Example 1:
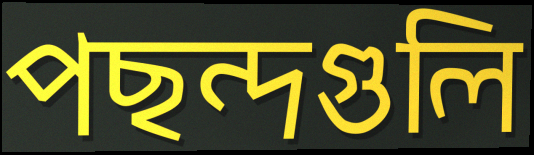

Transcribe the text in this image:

পছন্দগুলি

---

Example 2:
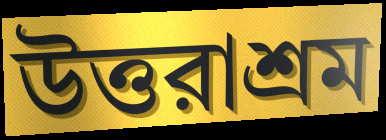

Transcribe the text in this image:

উত্তরাশ্রম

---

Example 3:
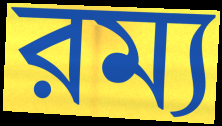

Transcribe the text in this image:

রম্য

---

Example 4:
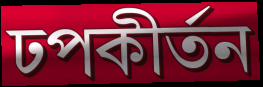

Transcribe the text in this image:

ঢপকীর্তন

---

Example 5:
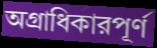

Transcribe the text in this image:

অগ্রাধিকারপূর্ণ